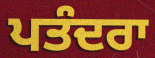
ਪਤੰਦਰਾ